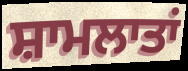
ਸ਼ਾਮਲਾਤਾਂ